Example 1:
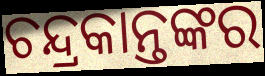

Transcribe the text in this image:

ଚନ୍ଦ୍ରକାନ୍ତଙ୍କର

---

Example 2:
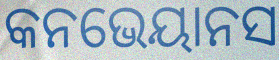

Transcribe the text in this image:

କନଭେୟାନସ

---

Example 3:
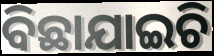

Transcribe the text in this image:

ବିଛାଯାଇଚି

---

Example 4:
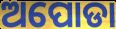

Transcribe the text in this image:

ଅପୋଡା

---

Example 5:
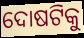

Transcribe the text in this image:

ଦୋଷଟିକୁ